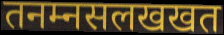
तनम्नसलखखत